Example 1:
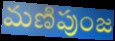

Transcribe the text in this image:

మణిపుంజ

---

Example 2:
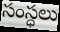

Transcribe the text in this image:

సంస్ధలు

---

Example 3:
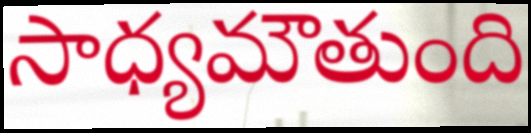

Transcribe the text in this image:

సాధ్యమౌతుంది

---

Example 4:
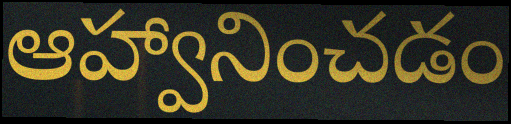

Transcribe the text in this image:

ఆహ్వానించడం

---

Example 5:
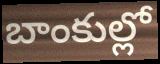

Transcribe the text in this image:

బాంకుల్లో